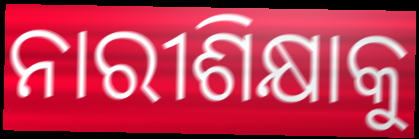
ନାରୀଶିକ୍ଷାକୁ